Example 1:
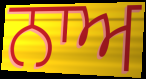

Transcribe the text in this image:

ਨਾਅ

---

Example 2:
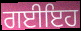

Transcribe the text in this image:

ਗਈਇਹ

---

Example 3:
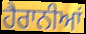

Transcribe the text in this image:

ਹੈਰਾਨੀਆਂ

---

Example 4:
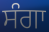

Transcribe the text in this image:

ਸੰਗਾ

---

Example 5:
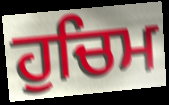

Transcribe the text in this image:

ਹੁਚਿਮ